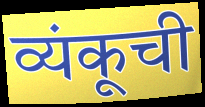
व्यंकूची